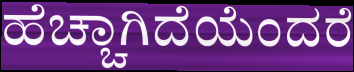
ಹೆಚ್ಚಾಗಿದೆಯೆಂದರೆ